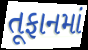
તૂફાનમાં